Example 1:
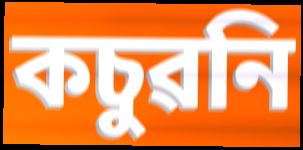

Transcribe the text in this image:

কচুৱনি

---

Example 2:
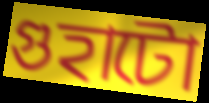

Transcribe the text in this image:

গুহাটো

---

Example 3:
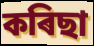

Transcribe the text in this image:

কৰিছা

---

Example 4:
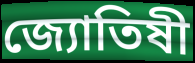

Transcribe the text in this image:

জ্যোতিষী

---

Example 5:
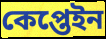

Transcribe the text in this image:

কেপ্তেইন